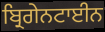
ਬ੍ਰਿਗੇਨਟਾਈਨ